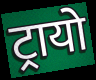
ट्रायो